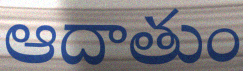
ఆదాతుం